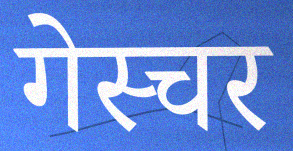
गेस्चर